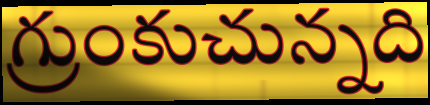
గ్రుంకుచున్నది